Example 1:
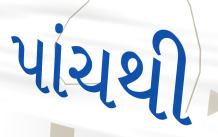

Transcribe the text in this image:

પાંચથી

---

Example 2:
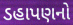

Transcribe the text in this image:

ડહાપણનો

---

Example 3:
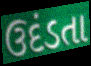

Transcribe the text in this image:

ઉદંડતા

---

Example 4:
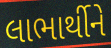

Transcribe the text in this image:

લાભાર્થીને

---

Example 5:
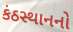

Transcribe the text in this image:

કંઠસ્થાનનો